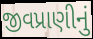
જીવપ્રાણીનું